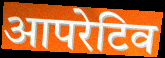
आपरेटिव